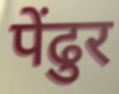
पेंढुर